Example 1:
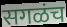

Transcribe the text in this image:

सगळंच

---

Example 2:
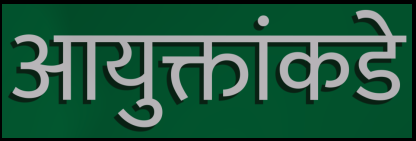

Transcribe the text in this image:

आयुक्तांकडे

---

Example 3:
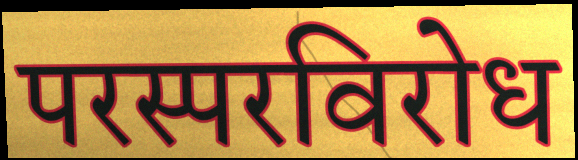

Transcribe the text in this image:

परस्परविरोध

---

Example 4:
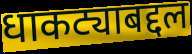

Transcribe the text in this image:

धाकट्याबद्दल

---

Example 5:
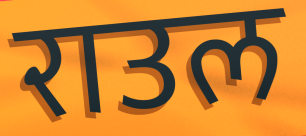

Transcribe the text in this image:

राउल